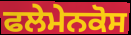
ਫਲੇਮੇਨਕੋਸ